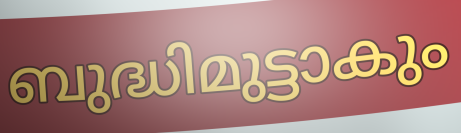
ബുദ്ധിമുട്ടാകും